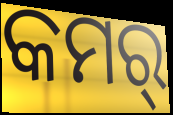
କମର୍